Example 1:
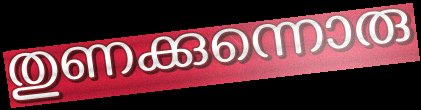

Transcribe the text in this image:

തുണക്കുന്നൊരു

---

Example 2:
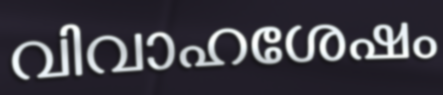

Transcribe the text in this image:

വിവാഹശേഷം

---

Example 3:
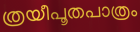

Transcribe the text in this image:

ത്രയീപൂതപാത്രം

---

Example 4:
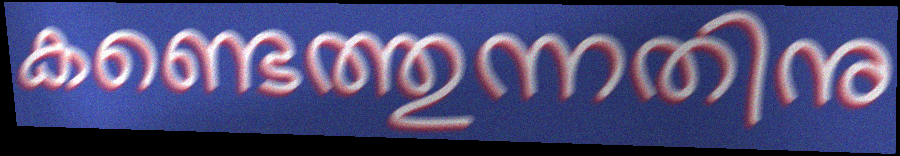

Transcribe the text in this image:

കണ്ടെത്തുന്നതിനു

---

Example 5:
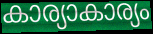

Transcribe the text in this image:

കാര്യാകാര്യം